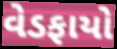
વેડફાયો